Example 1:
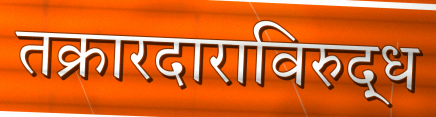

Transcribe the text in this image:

तक्रारदाराविरुद्ध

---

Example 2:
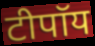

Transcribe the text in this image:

टीपॉय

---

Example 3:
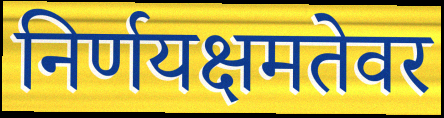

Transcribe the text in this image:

निर्णयक्षमतेवर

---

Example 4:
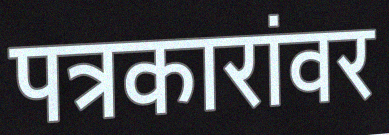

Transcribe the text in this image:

पत्रकारांवर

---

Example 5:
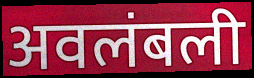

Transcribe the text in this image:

अवलंबली